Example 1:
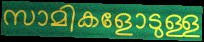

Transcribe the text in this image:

സാമികളോടുള്ള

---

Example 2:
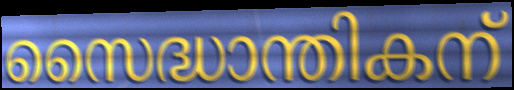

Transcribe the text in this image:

സൈദ്ധാന്തികന്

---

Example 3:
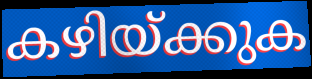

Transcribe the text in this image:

കഴിയ്ക്കുക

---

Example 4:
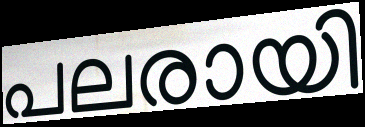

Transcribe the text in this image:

പലരായി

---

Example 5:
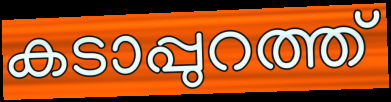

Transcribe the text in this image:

കടാപ്പുറത്ത്